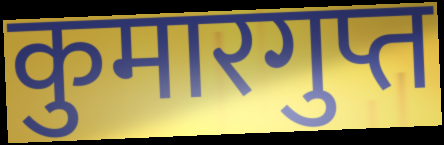
कुमारगुप्त